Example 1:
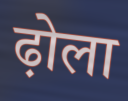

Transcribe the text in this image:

ढ़ोला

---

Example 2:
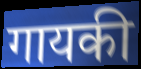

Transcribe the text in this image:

गायकी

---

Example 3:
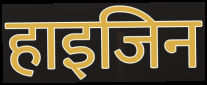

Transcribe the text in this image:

हाइजिन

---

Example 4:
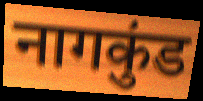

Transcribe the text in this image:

नागकुंड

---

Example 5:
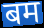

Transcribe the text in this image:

बम